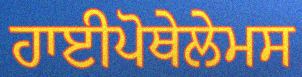
ਹਾਈਪੋਥੇਲੇਮਸ